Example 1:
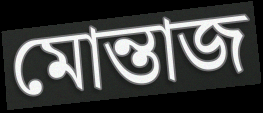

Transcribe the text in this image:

মোন্তাজ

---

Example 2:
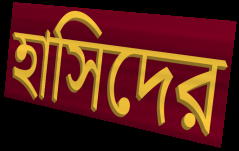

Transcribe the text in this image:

হাসিদের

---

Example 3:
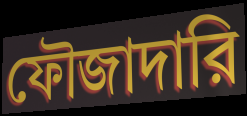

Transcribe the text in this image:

ফৌজাদারি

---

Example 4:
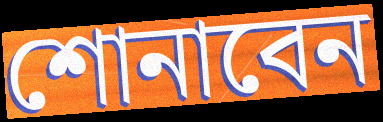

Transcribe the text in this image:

শোনাবেন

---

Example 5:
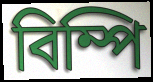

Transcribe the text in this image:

বিম্পি